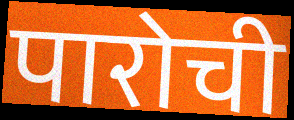
पारोची